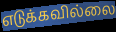
எடுக்கவில்லை